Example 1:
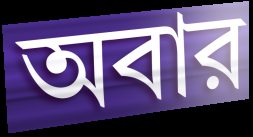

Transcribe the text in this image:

অবার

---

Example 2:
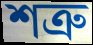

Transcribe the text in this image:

শত্রু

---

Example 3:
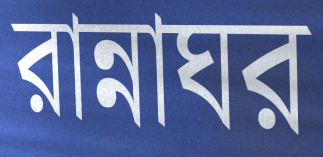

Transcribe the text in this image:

রান্নাঘর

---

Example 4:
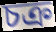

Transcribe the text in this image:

চক্র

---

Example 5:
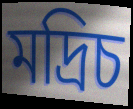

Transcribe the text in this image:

মদ্রিচ